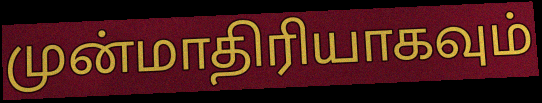
முன்மாதிரியாகவும்